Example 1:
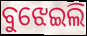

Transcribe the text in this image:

ବୁଝେଇଲି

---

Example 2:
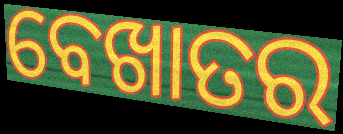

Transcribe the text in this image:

ବେଖାତର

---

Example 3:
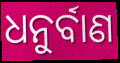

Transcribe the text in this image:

ଧନୁର୍ବାଣ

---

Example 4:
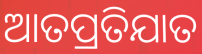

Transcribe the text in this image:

ଆତପ୍ରତିଯାତ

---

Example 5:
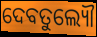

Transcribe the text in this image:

ଦେବତୁଲ୍ୟୌ